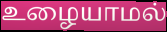
உழையாமல்